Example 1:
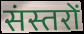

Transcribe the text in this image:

संस्तरों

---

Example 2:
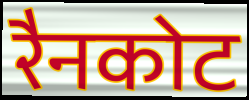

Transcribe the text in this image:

रैनकोट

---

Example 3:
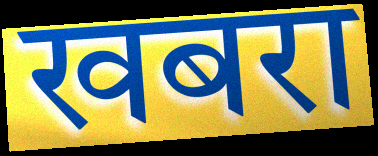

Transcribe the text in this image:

खबरा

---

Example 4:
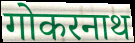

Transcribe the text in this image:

गोकरनाथ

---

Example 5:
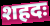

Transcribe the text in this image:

शहदः